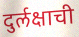
दुर्लक्षाची